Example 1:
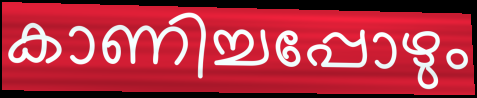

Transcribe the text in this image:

കാണിച്ചപ്പോഴും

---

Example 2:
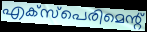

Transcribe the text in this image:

എക്സ്പെരിമെന്റ്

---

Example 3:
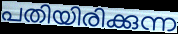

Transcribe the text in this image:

പതിയിരിക്കുന്ന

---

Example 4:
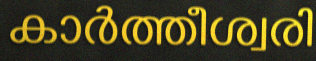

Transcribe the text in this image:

കാർത്തീശ്വരി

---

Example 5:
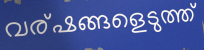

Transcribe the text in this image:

വര്ഷങ്ങളെടുത്ത്